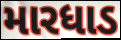
મારધાડ